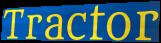
Tractor